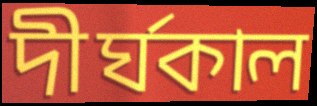
দীৰ্ঘকাল